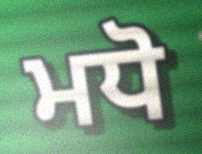
ਮਧੋ